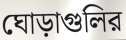
ঘোড়াগুলির